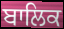
ਬਾਲਿਕ